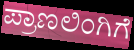
ಪ್ರಾಣಲಿಂಗಿಗೆ